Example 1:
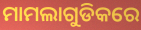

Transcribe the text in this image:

ମାମଲାଗୁଡିକରେ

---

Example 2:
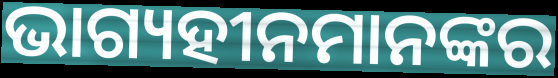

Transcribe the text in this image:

ଭାଗ୍ୟହୀନମାନଙ୍କର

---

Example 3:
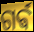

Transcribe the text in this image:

ଗର୍ଵ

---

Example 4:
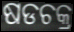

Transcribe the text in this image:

ଷଡଚକ୍ର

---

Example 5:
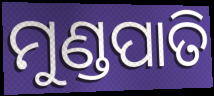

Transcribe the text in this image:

ମୁଣ୍ଡପାତି